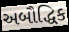
અબૌદ્ધિક